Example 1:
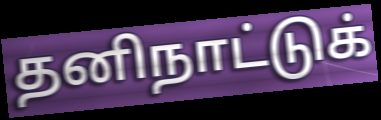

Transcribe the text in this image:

தனிநாட்டுக்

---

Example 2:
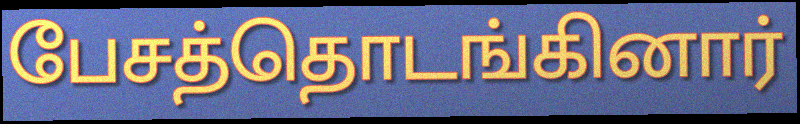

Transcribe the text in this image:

பேசத்தொடங்கினார்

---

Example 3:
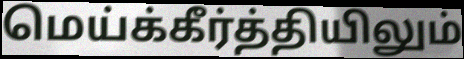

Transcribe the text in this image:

மெய்க்கீர்த்தியிலும்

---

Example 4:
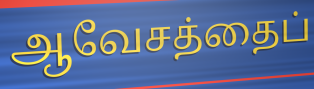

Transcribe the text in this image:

ஆவேசத்தைப்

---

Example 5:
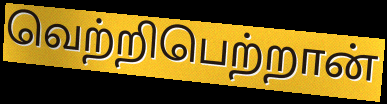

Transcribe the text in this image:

வெற்றிபெற்றான்